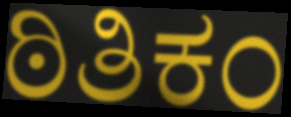
ಠಿತಿಕಂ